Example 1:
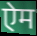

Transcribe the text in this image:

ऐम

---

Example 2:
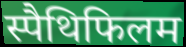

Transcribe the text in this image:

स्पैथिफिलम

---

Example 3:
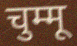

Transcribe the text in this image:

चुम्मू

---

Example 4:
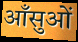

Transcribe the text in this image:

आँसुओं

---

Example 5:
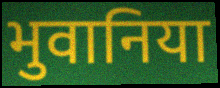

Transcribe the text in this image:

भुवानिया